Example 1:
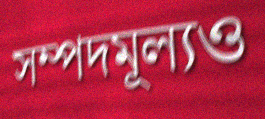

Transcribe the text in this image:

সম্পদমূল্যও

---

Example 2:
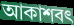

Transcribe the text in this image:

আকাশবৎ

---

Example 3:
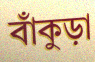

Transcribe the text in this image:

বাঁকুড়া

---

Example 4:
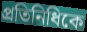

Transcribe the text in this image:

প্রতিনিধিকে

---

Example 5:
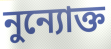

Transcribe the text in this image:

নুন্যোক্ত